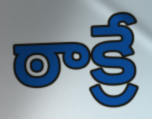
ఠాక్రే